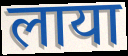
लाया